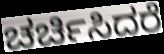
ಚರ್ಚಿಸಿದರೆ